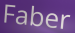
Faber